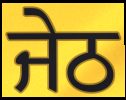
ਜੇਠ